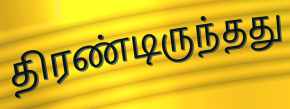
திரண்டிருந்தது